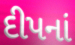
દીપનાં